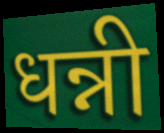
धन्नी